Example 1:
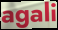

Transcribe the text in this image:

agali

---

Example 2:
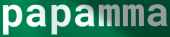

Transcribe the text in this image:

papamma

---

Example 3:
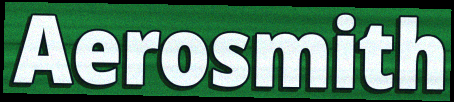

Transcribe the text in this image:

Aerosmith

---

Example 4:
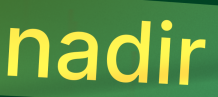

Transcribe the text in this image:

nadir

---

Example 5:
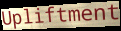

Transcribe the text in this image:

Upliftment